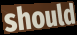
should